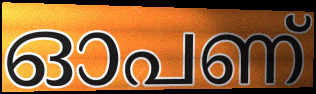
ഓപണ്